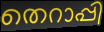
തെറാപ്പി